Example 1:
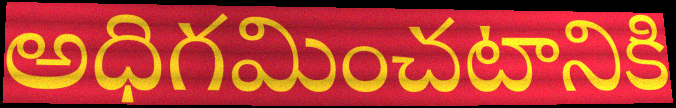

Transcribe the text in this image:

అధిగమించటానికి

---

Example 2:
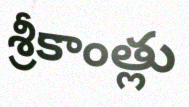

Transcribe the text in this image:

శ్రీకాంత్లు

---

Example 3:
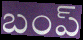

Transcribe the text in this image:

బంప్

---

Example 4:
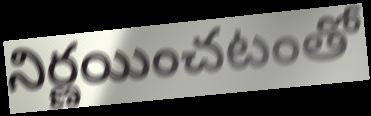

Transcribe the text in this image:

నిర్ణయించటంతో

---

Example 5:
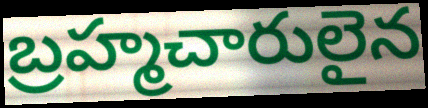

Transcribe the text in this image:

బ్రహ్మచారులైన